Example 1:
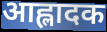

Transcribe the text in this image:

आह्लादक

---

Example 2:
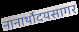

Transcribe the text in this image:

नानार्थोदयसागर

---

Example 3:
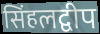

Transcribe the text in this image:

सिंहलद्वीप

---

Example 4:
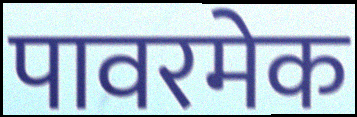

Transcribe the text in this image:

पावरमेक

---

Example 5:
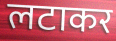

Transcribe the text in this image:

लटाकर